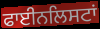
ਫਾਈਨਲਿਸਟਾਂ